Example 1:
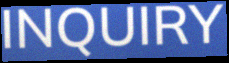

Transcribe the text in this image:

INQUIRY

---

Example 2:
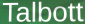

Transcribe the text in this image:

Talbott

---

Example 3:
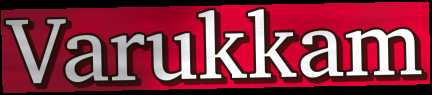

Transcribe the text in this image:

Varukkam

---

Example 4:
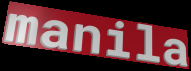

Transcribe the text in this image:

manila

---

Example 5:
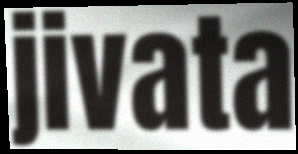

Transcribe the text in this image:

jivata